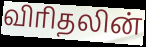
விரிதலின்